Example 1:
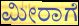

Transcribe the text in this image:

ಮೀರಾಗೆ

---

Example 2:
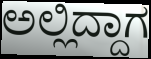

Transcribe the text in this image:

ಅಲ್ಲಿದ್ದಾಗ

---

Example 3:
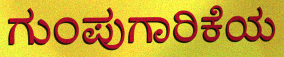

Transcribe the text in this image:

ಗುಂಪುಗಾರಿಕೆಯ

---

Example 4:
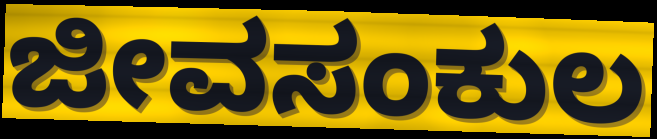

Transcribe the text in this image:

ಜೀವಸಂಕುಲ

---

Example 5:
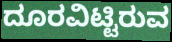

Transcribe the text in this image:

ದೂರವಿಟ್ಟಿರುವ